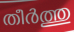
തീർത്തു